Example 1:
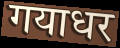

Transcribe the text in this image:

गयाधर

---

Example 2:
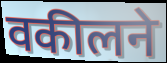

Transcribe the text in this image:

वकीलने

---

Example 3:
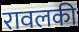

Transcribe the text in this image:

रावलकी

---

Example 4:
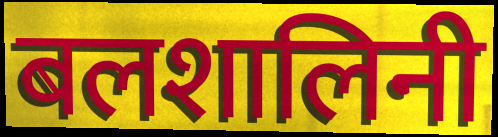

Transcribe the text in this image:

बलशालिनी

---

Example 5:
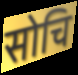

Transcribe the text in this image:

सोचि